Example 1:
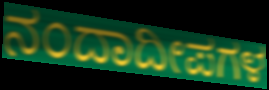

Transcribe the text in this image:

ನಂದಾದೀಪಗಳ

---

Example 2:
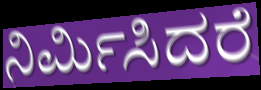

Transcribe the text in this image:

ನಿರ್ಮಿಸಿದರೆ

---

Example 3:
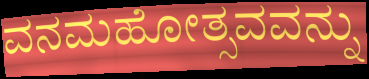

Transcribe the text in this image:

ವನಮಹೋತ್ಸವವನ್ನು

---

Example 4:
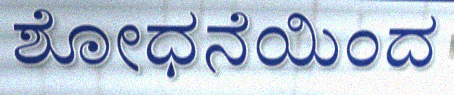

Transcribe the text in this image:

ಶೋಧನೆಯಿಂದ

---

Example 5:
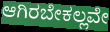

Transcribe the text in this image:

ಆಗಿರಬೇಕಲ್ಲವೇ